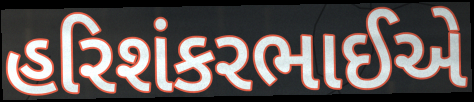
હરિશંકરભાઈએ